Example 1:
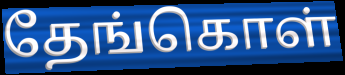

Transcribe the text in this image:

தேங்கொள்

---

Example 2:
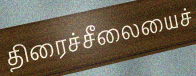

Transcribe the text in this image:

திரைச்சீலையைச்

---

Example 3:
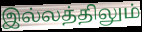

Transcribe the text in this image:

இல்லத்திலும்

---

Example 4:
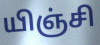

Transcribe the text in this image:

யிஞ்சி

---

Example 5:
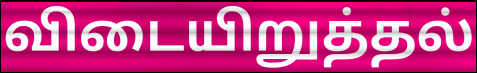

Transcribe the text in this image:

விடையிறுத்தல்